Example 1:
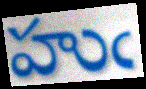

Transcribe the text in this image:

హుఁ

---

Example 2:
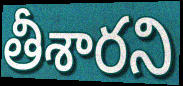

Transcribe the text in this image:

తీశారని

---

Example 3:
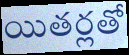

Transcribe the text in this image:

యితర్లతో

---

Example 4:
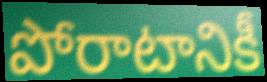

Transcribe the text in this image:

పోరాటానికీ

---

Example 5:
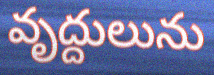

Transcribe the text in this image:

వృద్దులును